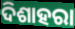
ଦିଶାହରା